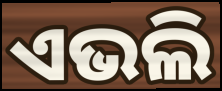
ଏଭଲି